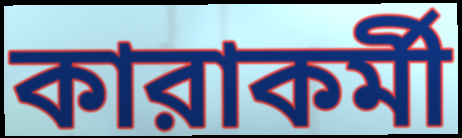
কারাকর্মী